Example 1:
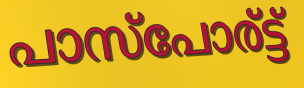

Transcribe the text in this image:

പാസ്പോര്ട്ട്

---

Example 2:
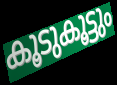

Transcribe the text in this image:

കൂടുകൂട്ടും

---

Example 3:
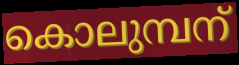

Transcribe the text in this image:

കൊലുമ്പന്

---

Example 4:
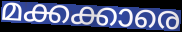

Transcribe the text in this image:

മക്കക്കാരെ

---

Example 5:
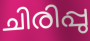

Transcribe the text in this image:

ചിരിപ്പു